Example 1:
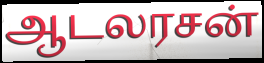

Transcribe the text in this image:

ஆடலரசன்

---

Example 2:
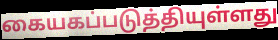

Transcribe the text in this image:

கையகப்படுத்தியுள்ளது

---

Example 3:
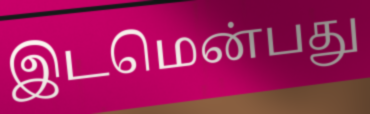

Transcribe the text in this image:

இடமென்பது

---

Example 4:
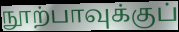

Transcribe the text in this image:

நூற்பாவுக்குப்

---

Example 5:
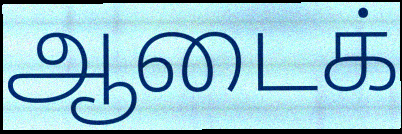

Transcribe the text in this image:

ஆடைக்